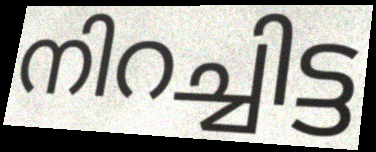
നിറച്ചിട്ട